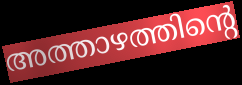
അത്താഴത്തിന്റെ